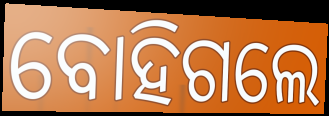
ବୋହିଗଲେ